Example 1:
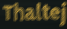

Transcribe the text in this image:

Thaltej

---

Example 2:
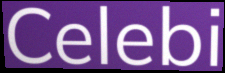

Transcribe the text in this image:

Celebi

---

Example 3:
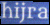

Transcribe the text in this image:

hijra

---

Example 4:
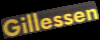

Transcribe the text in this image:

Gillessen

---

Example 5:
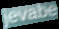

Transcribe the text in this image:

jevabe